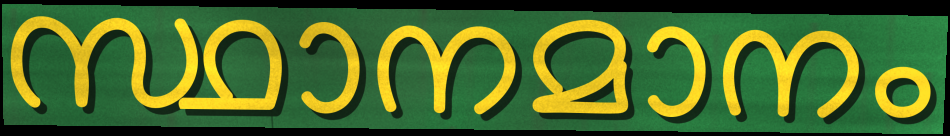
സ്ഥാനമാനം